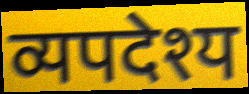
व्यपदेश्य